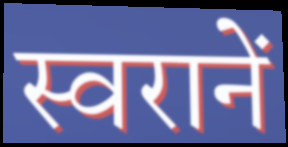
स्वरानें